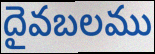
దైవబలము